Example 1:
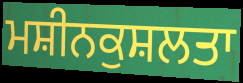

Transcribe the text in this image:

ਮਸ਼ੀਨਕੁਸ਼ਲਤਾ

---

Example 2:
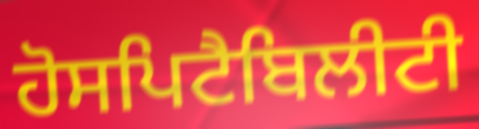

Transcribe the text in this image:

ਹੋਸਪਿਟੈਬਿਲੀਟੀ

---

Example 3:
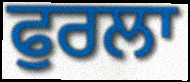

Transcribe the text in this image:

ਫੁਰਲਾ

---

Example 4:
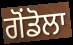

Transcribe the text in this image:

ਗੋਂਡੋਲਾ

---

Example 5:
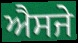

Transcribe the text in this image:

ਐਸਜੇ